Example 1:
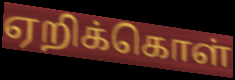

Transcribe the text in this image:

ஏறிக்கொள்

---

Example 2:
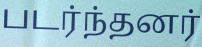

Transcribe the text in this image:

படர்ந்தனர்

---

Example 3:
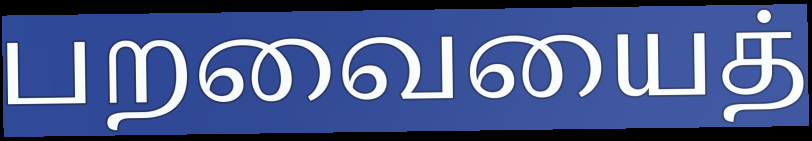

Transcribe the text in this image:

பறவையைத்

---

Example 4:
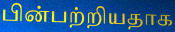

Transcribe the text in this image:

பின்பற்றியதாக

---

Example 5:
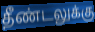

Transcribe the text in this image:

தீண்டலுக்கு